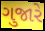
ગુજારે